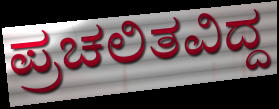
ಪ್ರಚಲಿತವಿದ್ದ